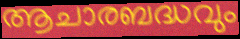
ആചാരബദ്ധവും